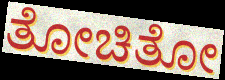
ತೋಚಿತೋ